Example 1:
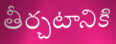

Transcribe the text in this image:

తీర్చటానికి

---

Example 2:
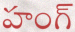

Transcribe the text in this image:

హంగ్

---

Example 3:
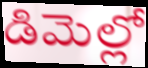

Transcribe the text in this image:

డిమెల్లో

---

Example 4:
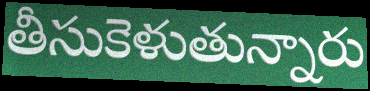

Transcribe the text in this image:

తీసుకెళుతున్నారు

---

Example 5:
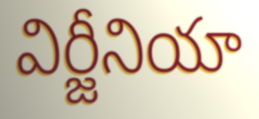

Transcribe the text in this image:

విర్జీనియా